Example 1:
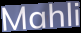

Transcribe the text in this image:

Mahli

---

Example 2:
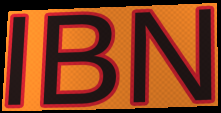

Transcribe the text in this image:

IBN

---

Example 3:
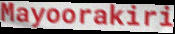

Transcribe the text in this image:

Mayoorakiri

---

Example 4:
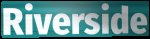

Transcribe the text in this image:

Riverside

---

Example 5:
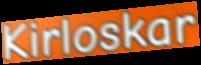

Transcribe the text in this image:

Kirloskar